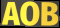
AOB